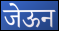
जेऊन